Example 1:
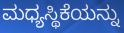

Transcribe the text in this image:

ಮಧ್ಯಸ್ಥಿಕೆಯನ್ನು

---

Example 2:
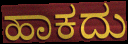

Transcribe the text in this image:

ಹಾಕದು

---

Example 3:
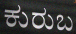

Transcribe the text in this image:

ಕುರುಬ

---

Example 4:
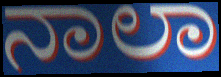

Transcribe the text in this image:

ನಾಲಾ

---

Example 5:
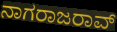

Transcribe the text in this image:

ನಾಗರಾಜರಾವ್